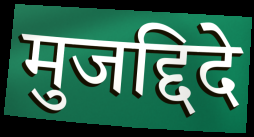
मुजद्दिदे